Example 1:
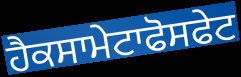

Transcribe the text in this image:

ਹੈਕਸਾਮੇਟਾਫੋਸਫੇਟ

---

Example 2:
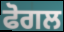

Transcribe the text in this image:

ਫੋਗਲ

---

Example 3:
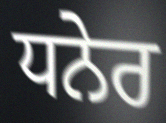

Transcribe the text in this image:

ਧਨੇਰ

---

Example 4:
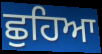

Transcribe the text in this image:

ਛੁਹਿਆ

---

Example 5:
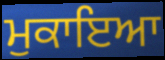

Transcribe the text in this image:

ਮੁਕਾਇਆ